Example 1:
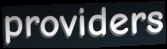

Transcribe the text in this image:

providers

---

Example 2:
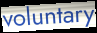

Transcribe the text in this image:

voluntary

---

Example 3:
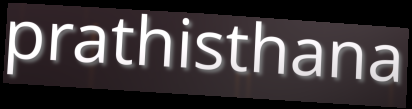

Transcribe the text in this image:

prathisthana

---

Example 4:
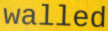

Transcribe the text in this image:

walled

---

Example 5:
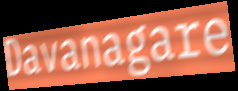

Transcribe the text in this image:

Davanagare